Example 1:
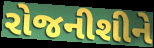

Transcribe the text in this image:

રોજનીશીને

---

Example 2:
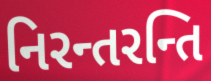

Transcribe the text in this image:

નિરન્તરન્તિ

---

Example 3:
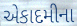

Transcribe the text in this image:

એકાદમીના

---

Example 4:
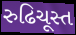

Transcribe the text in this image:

રુઢિચૂસ્ત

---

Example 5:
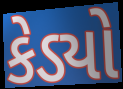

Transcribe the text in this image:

કેડ્યો